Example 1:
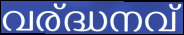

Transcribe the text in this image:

വര്ദ്ധനവ്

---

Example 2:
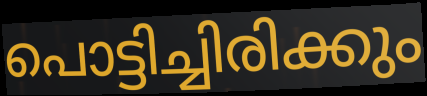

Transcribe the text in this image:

പൊട്ടിച്ചിരിക്കും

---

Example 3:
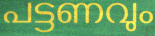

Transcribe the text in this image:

പട്ടണവും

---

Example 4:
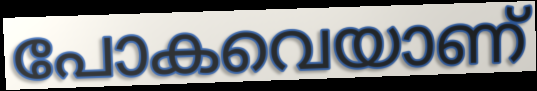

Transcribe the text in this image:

പോകവെയാണ്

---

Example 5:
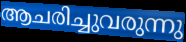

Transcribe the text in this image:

ആചരിച്ചുവരുന്നു